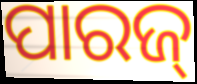
ପାରଜ୍